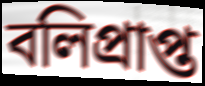
বলিপ্রাপ্ত